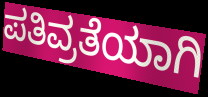
ಪತಿವ್ರತೆಯಾಗಿ